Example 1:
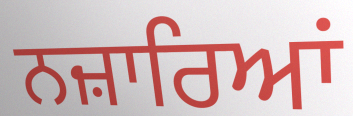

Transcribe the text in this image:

ਨਜ਼ਾਰਿਆਂ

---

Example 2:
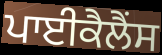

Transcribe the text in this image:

ਪਾਈਕੈਲੈਂਸ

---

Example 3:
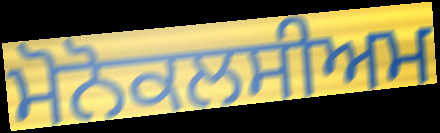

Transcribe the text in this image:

ਮੋਨੋਕਲਸੀਅਮ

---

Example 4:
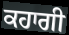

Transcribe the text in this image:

ਕਹਾਗੀ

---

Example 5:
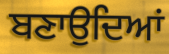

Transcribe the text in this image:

ਬਣਾਉਦਿਆਂ